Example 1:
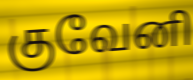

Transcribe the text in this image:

குவேனி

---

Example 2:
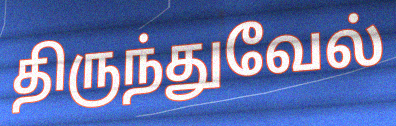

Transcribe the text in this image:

திருந்துவேல்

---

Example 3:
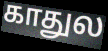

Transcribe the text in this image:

காதுல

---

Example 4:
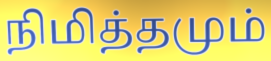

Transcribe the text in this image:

நிமித்தமும்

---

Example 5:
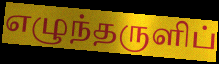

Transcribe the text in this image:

எழுந்தருளிப்